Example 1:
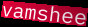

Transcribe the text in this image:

vamshee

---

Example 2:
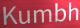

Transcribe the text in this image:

Kumbh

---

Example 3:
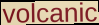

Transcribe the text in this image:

volcanic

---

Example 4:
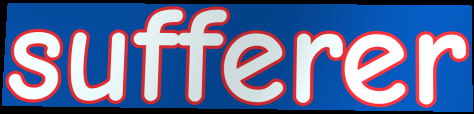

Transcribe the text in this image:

sufferer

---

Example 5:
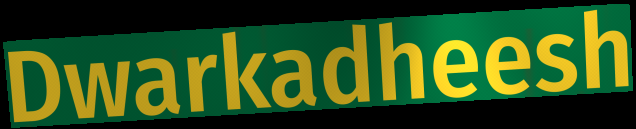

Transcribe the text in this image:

Dwarkadheesh